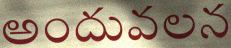
అందువలన